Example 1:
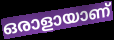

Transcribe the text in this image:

ഒരാളായാണ്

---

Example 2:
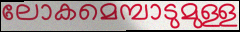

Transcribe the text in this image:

ലോകമെമ്പാടുമുള്ള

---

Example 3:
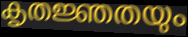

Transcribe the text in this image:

കൃതജ്ഞതയും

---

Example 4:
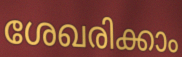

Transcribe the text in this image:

ശേഖരിക്കാം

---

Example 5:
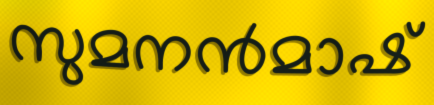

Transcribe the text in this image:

സുമനൻമാഷ്